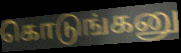
கொடுங்கனு